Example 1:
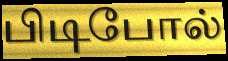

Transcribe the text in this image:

பிடிபோல்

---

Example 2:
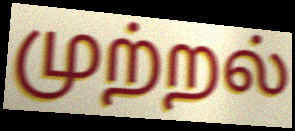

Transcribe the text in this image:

முற்றல்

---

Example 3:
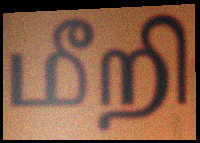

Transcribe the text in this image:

மீறி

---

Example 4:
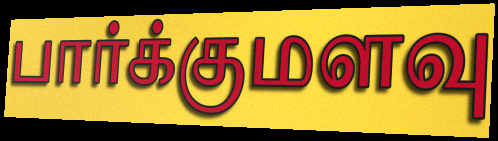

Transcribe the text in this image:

பார்க்குமளவு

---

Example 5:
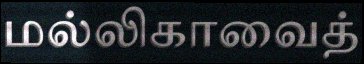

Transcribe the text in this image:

மல்லிகாவைத்